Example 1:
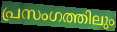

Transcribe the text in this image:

പ്രസംഗത്തിലും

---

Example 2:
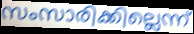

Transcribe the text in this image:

സംസാരിക്കില്ലെന്ന്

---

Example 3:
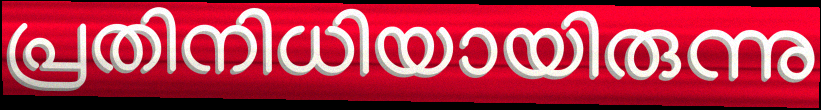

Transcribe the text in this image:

പ്രതിനിധിയായിരുന്നു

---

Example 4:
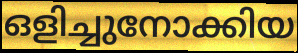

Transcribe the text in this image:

ഒളിച്ചുനോക്കിയ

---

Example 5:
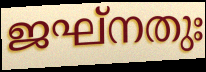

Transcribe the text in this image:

ജഘ്നതുഃ